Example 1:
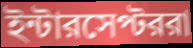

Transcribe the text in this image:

ইন্টারসেপ্টররা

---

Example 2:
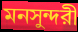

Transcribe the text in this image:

মনসুন্দরী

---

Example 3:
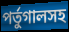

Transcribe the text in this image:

পর্তুগালসহ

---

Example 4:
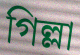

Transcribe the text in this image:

গিল্লা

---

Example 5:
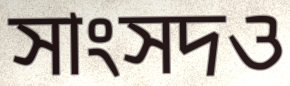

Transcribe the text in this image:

সাংসদও